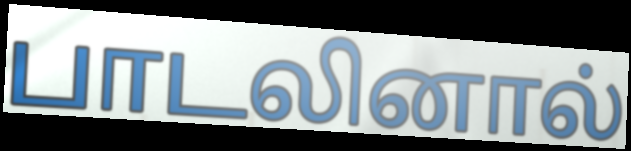
பாடலினால்